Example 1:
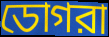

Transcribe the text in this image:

ডোগরা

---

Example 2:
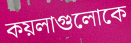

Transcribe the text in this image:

কয়লাগুলোকে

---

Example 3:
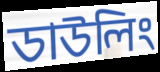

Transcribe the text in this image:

ডাউলিং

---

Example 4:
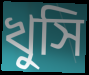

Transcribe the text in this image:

খুসি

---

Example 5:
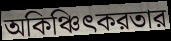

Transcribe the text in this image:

অকিঞ্চিৎকরতার